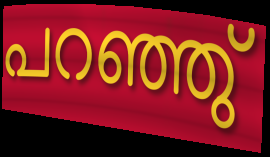
പറഞ്ഞു്